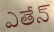
ఎతేన్